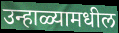
उन्हाळ्यामधील